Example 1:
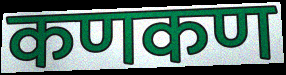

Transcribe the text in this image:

कणकण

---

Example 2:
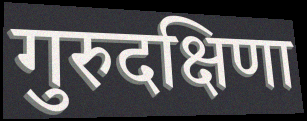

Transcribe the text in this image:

गुरुदक्षिणा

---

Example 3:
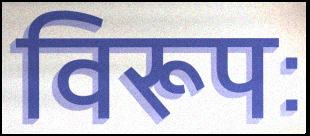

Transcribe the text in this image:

विरूपः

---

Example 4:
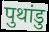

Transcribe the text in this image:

पुथांडु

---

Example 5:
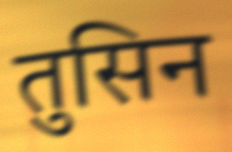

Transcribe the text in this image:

तुसिन